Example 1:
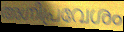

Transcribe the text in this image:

അഗ്നിപ്രവേശം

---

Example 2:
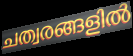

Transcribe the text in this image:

ചത്വരങ്ങളിൽ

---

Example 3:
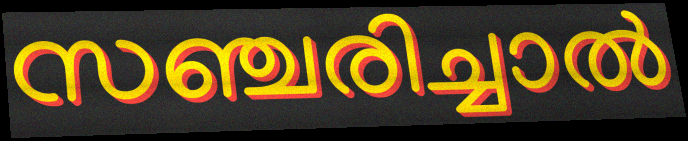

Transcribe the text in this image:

സഞ്ചരിച്ചാൽ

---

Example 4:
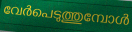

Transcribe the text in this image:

വേർപെടുത്തുമ്പോൾ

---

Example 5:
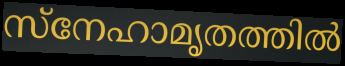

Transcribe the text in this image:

സ്നേഹാമൃതത്തിൽ